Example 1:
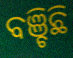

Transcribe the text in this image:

ବଞ୍ଚିଛି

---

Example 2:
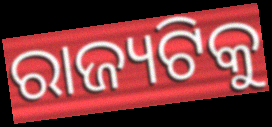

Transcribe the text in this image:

ରାଜ୍ୟଟିକୁ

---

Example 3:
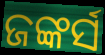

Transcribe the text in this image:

ଜଙ୍କର୍ସ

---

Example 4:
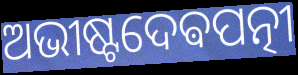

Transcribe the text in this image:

ଅଭୀଷ୍ଟଦେଵପତ୍ନୀ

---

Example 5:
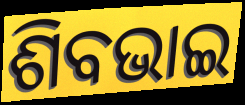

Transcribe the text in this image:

ଶିବଭାଇ